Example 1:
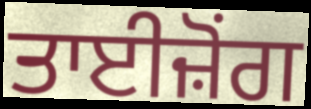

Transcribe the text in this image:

ਤਾਈਜ਼ੋਂਗ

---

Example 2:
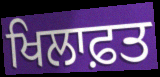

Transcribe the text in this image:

ਖਿਲਾਫ਼ਤ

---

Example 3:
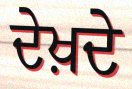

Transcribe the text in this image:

ਦੇਖ਼ਦੇ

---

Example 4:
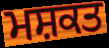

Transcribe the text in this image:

ਮਸ਼ਕਤ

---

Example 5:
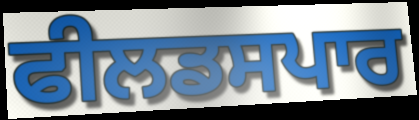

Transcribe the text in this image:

ਫੀਲਡਸਪਾਰ